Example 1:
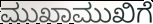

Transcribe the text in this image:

ಮುಖಾಮುಖಿಗೆ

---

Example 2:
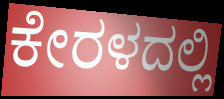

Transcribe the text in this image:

ಕೇರಳದಲ್ಲಿ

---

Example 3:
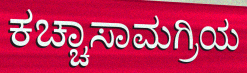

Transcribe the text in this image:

ಕಚ್ಚಾಸಾಮಗ್ರಿಯ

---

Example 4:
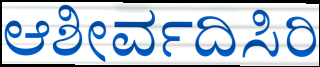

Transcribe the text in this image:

ಆಶೀರ್ವದಿಸಿರಿ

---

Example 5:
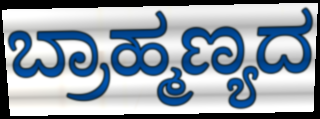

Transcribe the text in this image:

ಬ್ರಾಹ್ಮಣ್ಯದ